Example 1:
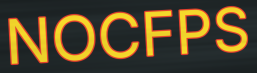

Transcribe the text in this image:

NOCFPS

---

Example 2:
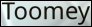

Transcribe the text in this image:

Toomey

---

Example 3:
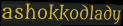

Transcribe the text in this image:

ashokkodlady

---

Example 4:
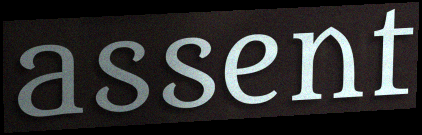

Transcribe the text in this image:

assent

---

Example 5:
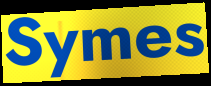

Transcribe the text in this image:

Symes